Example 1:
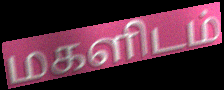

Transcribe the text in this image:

மகளிடம்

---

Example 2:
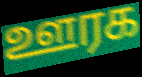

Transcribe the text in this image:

ஊரக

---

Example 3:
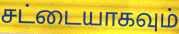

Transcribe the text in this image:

சட்டையாகவும்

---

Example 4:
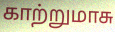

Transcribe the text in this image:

காற்றுமாசு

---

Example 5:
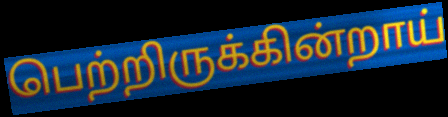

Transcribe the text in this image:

பெற்றிருக்கின்றாய்